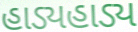
હાડ્યહાડ્ય